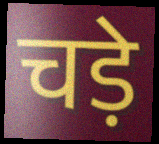
चड़े